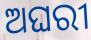
ଅଘରୀ